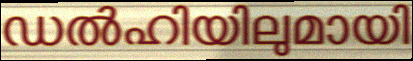
ഡൽഹിയിലുമായി